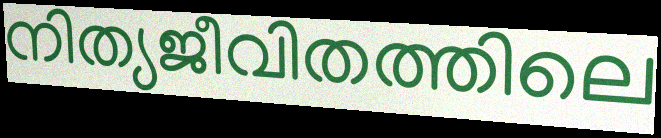
നിത്യജീവിതത്തിലെ